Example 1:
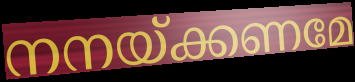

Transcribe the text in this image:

നനയ്ക്കണമേ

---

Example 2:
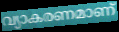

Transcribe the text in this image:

വ്യാകരണമാണ്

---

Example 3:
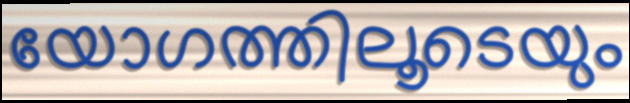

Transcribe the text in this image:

യോഗത്തിലൂടെയും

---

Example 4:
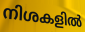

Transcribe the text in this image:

നിശകളിൽ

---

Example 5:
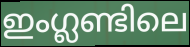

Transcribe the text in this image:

ഇംഗ്ലണ്ടിലെ